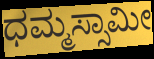
ಧಮ್ಮಸ್ಸಾಮೀ